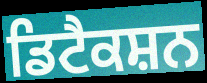
ਡਿਟੈਕਸ਼ਨ